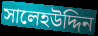
সালেহউদ্দিন